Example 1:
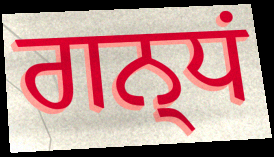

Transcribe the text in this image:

ਗਨ੍ਧਂ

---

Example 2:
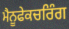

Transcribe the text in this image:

ਮੈਨੂਫੇਕਚਰਿੰਗ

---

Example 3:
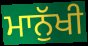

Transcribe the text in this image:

ਮਾਨੁੱਖੀ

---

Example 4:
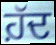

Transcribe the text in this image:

ਹ਼ੱਦ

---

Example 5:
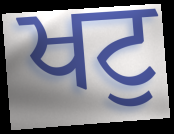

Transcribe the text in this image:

ਖਟੁ